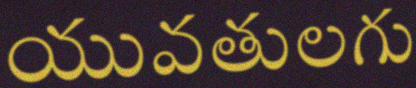
యువతులగు